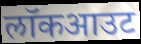
लॉकआउट